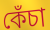
কেঁচা